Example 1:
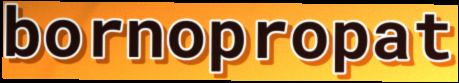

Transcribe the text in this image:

bornopropat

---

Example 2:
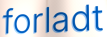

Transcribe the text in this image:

forladt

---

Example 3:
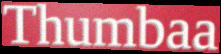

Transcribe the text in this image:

Thumbaa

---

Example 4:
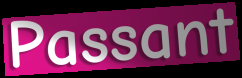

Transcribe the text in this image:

Passant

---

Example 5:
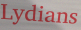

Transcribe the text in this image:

Lydians